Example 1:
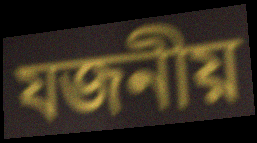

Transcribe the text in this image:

যজনীয়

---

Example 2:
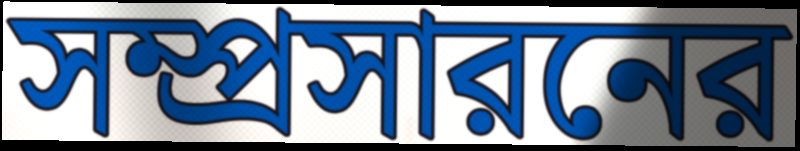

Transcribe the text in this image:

সম্প্রসারনের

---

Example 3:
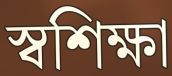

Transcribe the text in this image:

স্বশিক্ষা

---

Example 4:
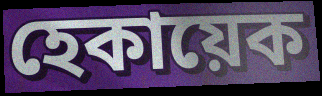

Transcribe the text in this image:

হেকায়েক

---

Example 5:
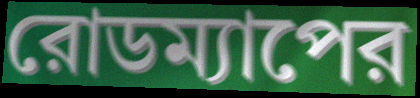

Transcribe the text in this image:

রোডম্যাপের